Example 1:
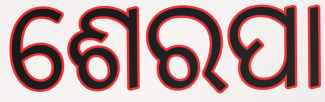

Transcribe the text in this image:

ଶେରପା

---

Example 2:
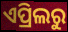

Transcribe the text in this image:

ଏପ୍ରିଲରୁ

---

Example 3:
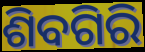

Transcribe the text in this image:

ଶିବଗିରି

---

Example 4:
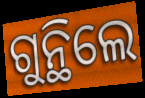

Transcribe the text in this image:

ଗୁନ୍ଥିଲେ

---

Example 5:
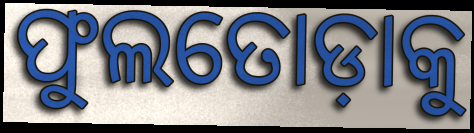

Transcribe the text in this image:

ଫୁଲତୋଡ଼ାକୁ